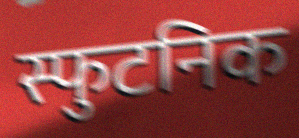
स्फुटनिक